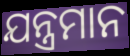
ଯନ୍ତ୍ରମାନ